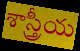
శాస్త్రీయ